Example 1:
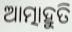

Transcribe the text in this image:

ଆତ୍ମାହୁତି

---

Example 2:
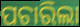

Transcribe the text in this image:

ପଚାରିଲା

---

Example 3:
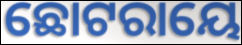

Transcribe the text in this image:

ଛୋଟରାୟେ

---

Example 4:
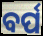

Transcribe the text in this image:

ବର୍ପ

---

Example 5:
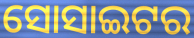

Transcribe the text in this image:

ସୋସାଇଟର